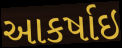
આકર્ષાઇ